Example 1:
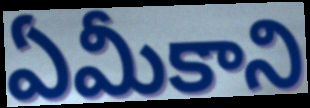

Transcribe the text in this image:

ఏమీకాని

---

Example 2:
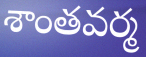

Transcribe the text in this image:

శాంతవర్మ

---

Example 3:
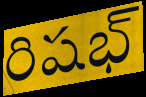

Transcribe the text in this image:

రిషభ్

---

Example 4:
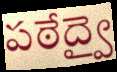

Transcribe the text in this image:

పఠేద్వై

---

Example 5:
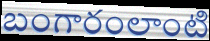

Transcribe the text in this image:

బంగారంలాంటి